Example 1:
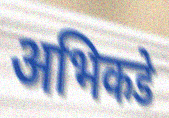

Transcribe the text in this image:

अभिकडे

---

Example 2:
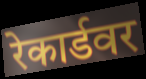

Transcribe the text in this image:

रेकार्डवर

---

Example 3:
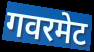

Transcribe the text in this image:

गवरमेट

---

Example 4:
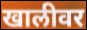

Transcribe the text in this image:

खालीवर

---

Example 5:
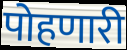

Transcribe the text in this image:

पोहणारी